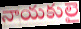
నాయకులై